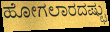
ಹೋಗಲಾರದಷ್ಟು